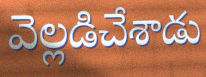
వెల్లడిచేశాడు